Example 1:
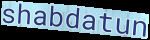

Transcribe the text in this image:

shabdatun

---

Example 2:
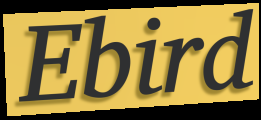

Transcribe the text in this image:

Ebird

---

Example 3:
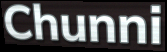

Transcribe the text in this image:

Chunni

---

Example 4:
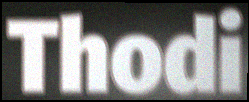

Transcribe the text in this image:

Thodi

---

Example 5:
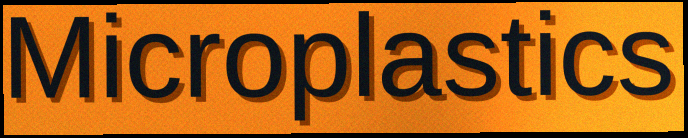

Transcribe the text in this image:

Microplastics